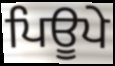
ਪਿਊਪੇ